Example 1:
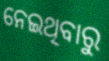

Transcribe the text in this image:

ନେଇଥିବାରୁ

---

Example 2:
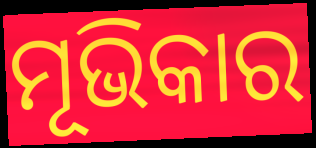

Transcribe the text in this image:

ମୂଭିକାର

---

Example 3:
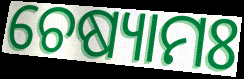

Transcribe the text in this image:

ଚେଷ୍ୟାମଃ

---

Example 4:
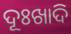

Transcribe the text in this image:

ଦୂଃଖାଦି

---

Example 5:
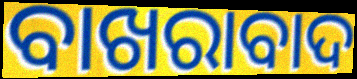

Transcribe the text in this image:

ବାଖରାବାଦ